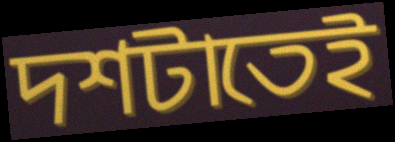
দশটাতেই